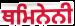
ਥਮਿਨੇਨੀ